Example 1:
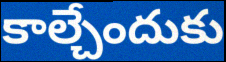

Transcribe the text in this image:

కాల్చేందుకు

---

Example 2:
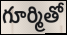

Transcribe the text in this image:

గూర్మితో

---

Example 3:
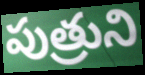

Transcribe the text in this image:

పుత్రుని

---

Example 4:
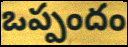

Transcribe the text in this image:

ఒప్పందం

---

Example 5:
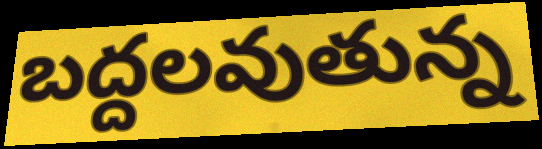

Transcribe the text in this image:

బద్దలవుతున్న